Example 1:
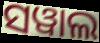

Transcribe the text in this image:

ସୱାଲ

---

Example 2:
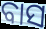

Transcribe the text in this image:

ବାସ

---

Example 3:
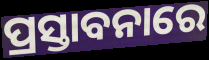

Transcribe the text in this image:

ପ୍ରସ୍ତାବନାରେ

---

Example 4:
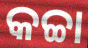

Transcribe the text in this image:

କଚ୍ଚା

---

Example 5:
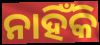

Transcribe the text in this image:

ନାହିଁକି